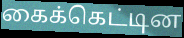
கைக்கெட்டின